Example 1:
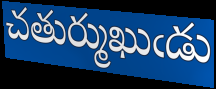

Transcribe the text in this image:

చతుర్ముఖుఁడు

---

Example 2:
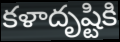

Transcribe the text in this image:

కళాదృష్టికి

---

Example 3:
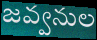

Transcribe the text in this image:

జవ్వనుల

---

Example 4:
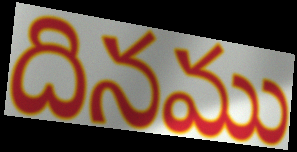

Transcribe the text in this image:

దినము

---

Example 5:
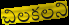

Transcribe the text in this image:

చిలకలని